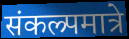
संकल्पमात्रे